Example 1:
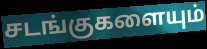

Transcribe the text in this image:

சடங்குகளையும்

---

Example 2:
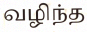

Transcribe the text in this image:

வழிந்த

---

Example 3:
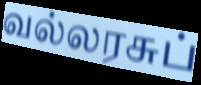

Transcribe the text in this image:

வல்லரசுப்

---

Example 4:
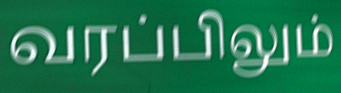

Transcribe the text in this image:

வரப்பிலும்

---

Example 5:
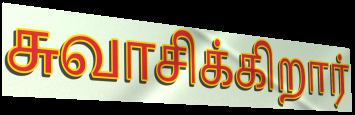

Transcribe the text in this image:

சுவாசிக்கிறார்